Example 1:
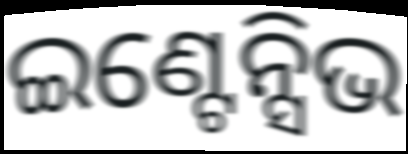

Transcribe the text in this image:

ଇଣ୍ଟେନ୍ସିଭ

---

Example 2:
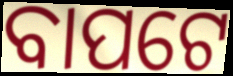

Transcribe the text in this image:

ବାପଟେ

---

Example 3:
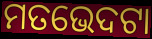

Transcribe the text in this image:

ମତଭେଦଟା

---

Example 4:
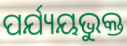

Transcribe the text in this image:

ପର୍ଯ୍ୟୟଭୁକ୍ତ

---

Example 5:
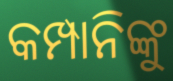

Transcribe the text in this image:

କମ୍ପାନିଙ୍କୁ